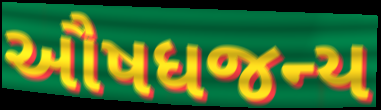
ઔષધજન્ય